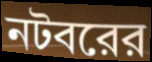
নটবরের